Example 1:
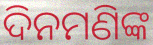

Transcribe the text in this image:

ଦିନମଣିଙ୍କ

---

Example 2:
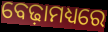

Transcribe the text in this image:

ବେଢ଼ାମଧ୍ୟରେ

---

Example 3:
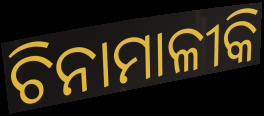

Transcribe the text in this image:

ଚିନାମାଳୀକି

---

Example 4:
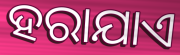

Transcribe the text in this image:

ହରାଯାଏ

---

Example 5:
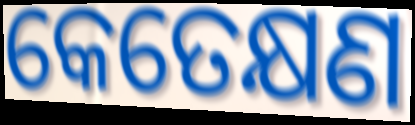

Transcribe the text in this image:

କେତେକ୍ଷଣ